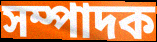
সম্পাদক